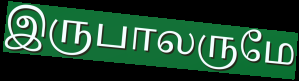
இருபாலருமே